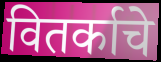
वितर्काचे